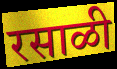
रसाळी